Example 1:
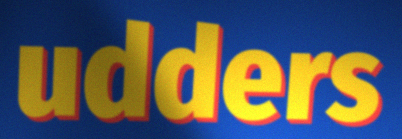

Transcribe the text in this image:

udders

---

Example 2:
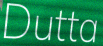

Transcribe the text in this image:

Dutta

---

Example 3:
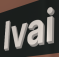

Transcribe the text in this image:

Ivai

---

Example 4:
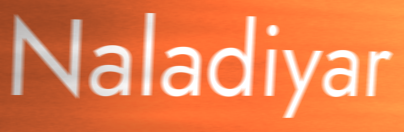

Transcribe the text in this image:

Naladiyar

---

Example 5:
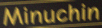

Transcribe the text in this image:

Minuchin